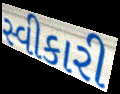
સ્વીકારી